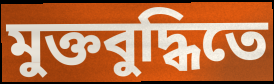
মুক্তবুদ্ধিতে